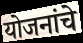
योजनांचे